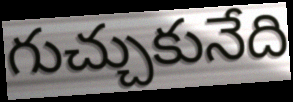
గుచ్చుకునేది